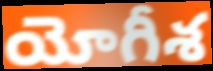
యోగీశ